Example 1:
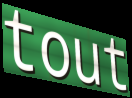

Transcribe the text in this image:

tout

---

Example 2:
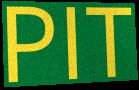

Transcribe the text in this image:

PIT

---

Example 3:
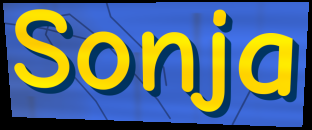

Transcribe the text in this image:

Sonja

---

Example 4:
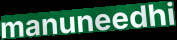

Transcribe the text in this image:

manuneedhi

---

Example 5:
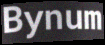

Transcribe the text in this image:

Bynum